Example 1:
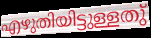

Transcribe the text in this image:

എഴുതിയിട്ടുള്ളതു്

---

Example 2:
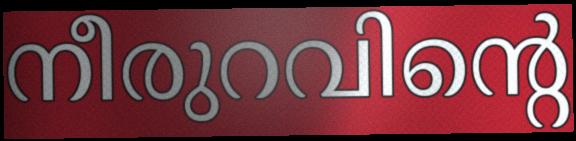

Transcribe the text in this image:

നീരുറവിന്റെ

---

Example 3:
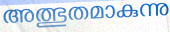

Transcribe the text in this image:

അത്ഭുതമാകുന്നു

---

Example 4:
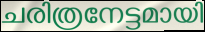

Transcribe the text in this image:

ചരിത്രനേട്ടമായി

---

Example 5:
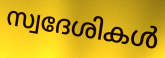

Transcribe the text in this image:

സ്വദേശികൾ